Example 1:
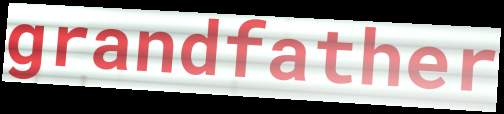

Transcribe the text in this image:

grandfather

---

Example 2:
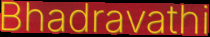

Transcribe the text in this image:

Bhadravathi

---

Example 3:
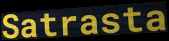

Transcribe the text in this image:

Satrasta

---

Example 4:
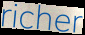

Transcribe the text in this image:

richer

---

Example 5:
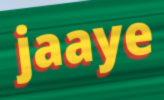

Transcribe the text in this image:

jaaye